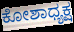
ಕೋಶಾಧ್ಯಕ್ಷ